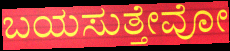
ಬಯಸುತ್ತೇವೋ